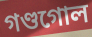
গণ্ডগোল